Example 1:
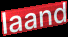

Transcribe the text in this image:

laand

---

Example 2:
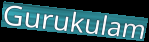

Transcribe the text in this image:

Gurukulam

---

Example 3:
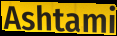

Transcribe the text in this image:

Ashtami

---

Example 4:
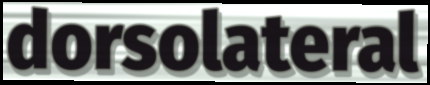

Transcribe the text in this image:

dorsolateral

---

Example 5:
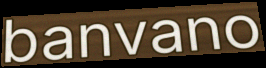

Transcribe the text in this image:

banvano